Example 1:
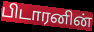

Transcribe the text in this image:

பிடாரனின்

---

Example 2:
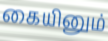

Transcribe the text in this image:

கையினும்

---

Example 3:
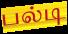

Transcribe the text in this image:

பல்டி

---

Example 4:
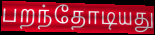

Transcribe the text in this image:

பறந்தோடியது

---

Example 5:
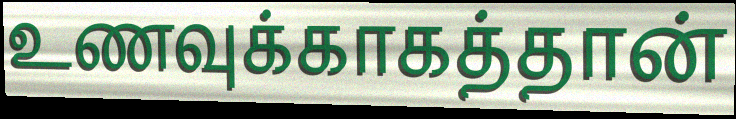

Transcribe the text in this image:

உணவுக்காகத்தான்